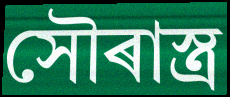
সৌৰাস্ত্ৰ